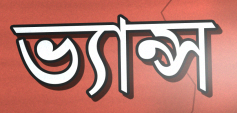
ভ্যান্স